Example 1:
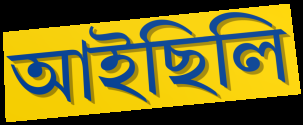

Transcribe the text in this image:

আইছিলি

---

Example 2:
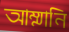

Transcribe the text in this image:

আম্মানি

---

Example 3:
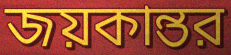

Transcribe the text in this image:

জয়কান্তর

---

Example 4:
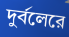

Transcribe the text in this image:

দুর্বলেরে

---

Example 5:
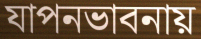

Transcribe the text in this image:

যাপনভাবনায়